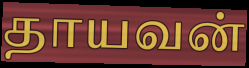
தாயவன்